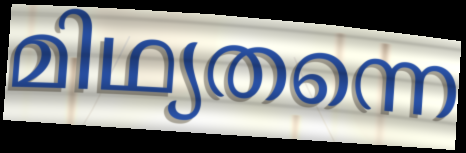
മിഥ്യതന്നെ